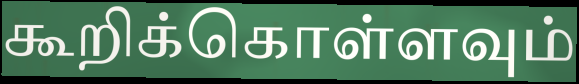
கூறிக்கொள்ளவும்